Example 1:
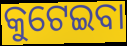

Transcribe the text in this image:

କୁଟେଇବା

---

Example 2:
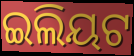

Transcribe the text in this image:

ଇଲିୟଟ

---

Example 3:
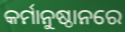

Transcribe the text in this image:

କର୍ମାନୁଷ୍ଠାନରେ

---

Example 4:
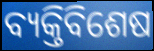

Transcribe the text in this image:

ବ୍ୟକ୍ତିବିଶେଷ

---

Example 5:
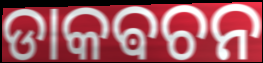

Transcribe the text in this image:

ଡାକଵଚନ